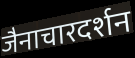
जैनाचारदर्शन